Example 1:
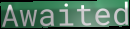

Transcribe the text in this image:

Awaited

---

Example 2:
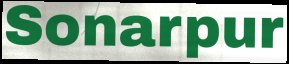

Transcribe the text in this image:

Sonarpur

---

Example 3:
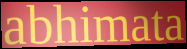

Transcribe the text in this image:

abhimata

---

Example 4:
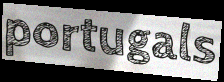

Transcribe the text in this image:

portugals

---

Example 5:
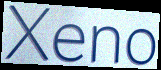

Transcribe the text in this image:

Xeno